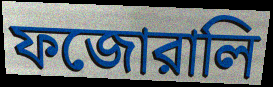
ফজোরালি